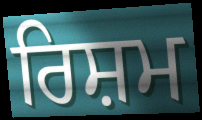
ਰਿਸ਼ਮ